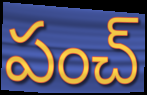
పంచ్